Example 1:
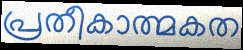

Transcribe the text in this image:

പ്രതീകാത്മകത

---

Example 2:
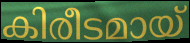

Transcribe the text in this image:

കിരീടമായ്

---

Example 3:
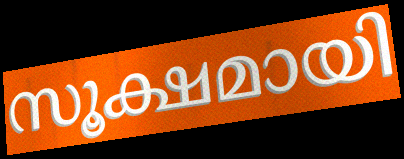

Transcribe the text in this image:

സൂക്ഷമായി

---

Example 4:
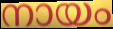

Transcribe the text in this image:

നായം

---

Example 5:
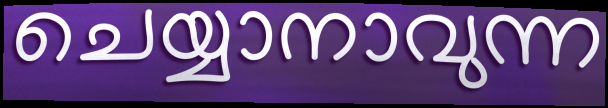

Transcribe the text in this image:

ചെയ്യാനാവുന്ന